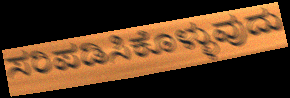
ಸರಿಪಡಿಸಿಕೊಳ್ಳುವುದು